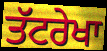
ਤੱਟਰੇਖਾ